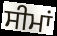
ਸੀਮਾਂ